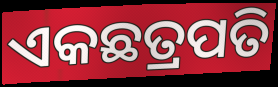
ଏକଛତ୍ରପତି